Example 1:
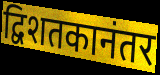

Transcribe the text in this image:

द्विशतकानंतर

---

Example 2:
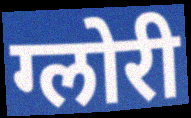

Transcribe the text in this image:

ग्लोरी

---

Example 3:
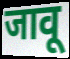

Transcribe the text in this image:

जावू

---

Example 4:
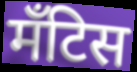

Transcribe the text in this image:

मँटिस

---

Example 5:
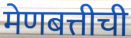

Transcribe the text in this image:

मेणबत्तीची